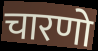
चारणो